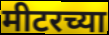
मीटरच्या